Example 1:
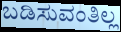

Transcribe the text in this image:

ಬಡಿಸುವಂತಿಲ್ಲ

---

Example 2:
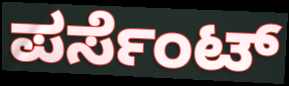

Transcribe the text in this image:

ಪರ್ಸೆಂಟ್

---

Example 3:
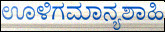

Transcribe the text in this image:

ಊಳಿಗಮಾನ್ಯಶಾಹಿ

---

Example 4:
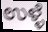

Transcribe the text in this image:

ಉಳ್ಳೆ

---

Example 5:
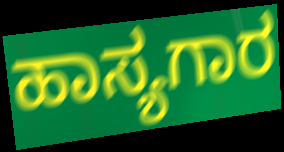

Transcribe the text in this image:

ಹಾಸ್ಯಗಾರ